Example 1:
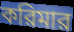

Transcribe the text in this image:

করিমার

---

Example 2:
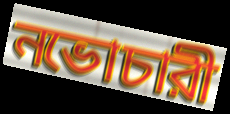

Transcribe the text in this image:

নভোচারী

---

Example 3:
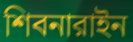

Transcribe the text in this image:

শিবনারাইন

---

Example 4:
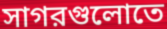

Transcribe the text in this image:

সাগরগুলোতে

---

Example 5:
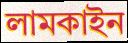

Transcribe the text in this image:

লামকাইন